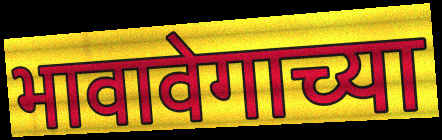
भावावेगाच्या